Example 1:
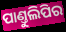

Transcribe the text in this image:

ପାଣ୍ତୁଲିପିର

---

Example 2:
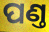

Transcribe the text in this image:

ପଣ୍ତ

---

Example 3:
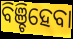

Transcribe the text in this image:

ବିଞ୍ଚିହେବା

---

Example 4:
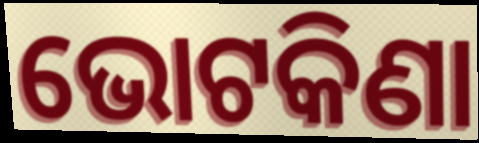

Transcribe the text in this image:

ଭୋଟକିଣା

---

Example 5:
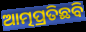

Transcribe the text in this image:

ଆତ୍ମପ୍ରତିଛବି